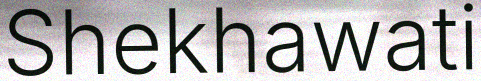
Shekhawati